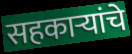
सहकाऱ्यांचे